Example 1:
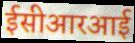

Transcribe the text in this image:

ईसीआरआई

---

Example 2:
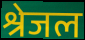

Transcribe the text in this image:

श्रेजल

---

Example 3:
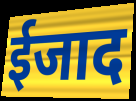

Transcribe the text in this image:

ईजाद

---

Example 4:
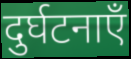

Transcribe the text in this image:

दुर्घटनाएँ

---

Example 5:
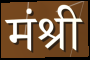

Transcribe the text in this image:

मंश्री